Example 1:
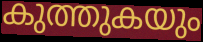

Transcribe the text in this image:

കുത്തുകയും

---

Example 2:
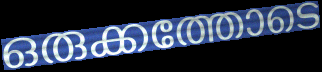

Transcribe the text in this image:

ഒരുക്കത്തോടെ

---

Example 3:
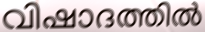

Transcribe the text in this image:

വിഷാദത്തിൽ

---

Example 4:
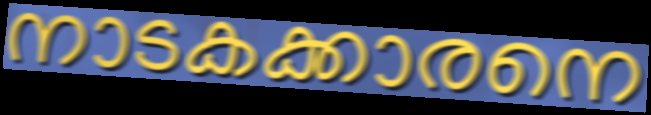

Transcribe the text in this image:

നാടകക്കാരനെ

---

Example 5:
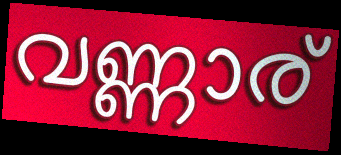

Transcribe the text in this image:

വണ്ണാര്